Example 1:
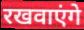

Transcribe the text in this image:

रखवाएंगे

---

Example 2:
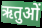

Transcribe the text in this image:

ऋतुओं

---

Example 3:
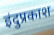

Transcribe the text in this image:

इंदुप्रकाश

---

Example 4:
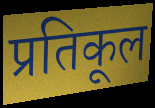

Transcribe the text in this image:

प्रतिकूल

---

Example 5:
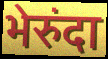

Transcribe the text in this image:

भेरुंदा